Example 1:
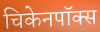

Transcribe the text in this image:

चिकेनपॉक्स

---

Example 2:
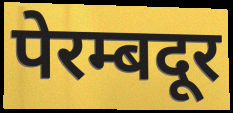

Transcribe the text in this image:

पेरम्बदूर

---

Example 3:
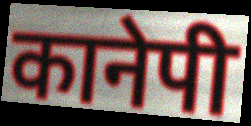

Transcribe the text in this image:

कानेपी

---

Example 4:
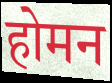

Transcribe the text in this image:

होमन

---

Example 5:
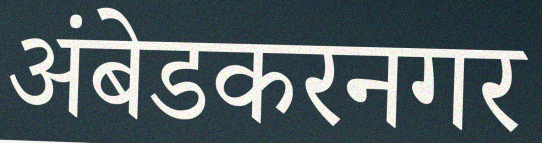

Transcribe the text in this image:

अंबेडकरनगर